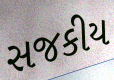
સજકીય